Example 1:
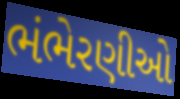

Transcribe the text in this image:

ભંભેરણીઓ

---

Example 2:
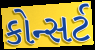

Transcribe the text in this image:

કોન્સર્ટ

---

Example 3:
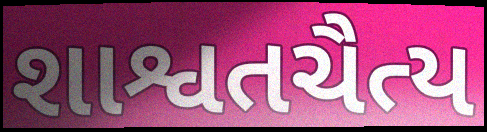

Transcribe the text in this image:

શાશ્વતચૈત્ય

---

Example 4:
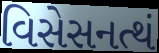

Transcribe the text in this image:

વિસેસનત્થં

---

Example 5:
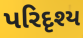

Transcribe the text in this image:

પરિદૃશ્ય